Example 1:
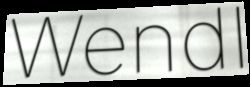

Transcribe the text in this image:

Wendl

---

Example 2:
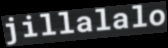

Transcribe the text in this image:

jillalalo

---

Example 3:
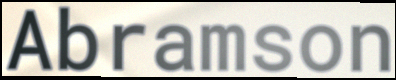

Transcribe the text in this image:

Abramson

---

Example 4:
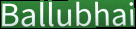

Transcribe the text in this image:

Ballubhai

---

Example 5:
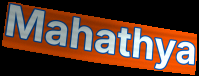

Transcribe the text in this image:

Mahathya